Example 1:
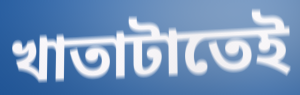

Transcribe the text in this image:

খাতাটাতেই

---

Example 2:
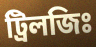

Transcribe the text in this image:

ট্রিলজিঃ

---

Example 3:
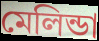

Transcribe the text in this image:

মেলিন্ডা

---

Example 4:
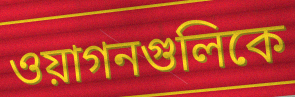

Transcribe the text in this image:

ওয়াগনগুলিকে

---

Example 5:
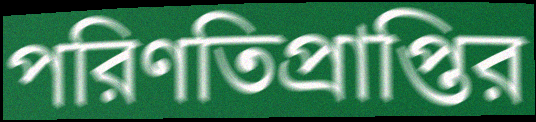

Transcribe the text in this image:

পরিণতিপ্রাপ্তির